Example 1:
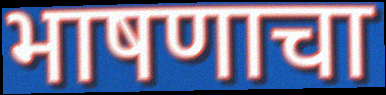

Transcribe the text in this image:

भाषणाचा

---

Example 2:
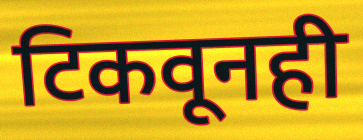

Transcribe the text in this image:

टिकवूनही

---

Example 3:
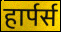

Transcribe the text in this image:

हार्पर्स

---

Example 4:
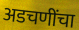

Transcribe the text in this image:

अडचणींचा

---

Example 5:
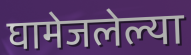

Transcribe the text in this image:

घामेजलेल्या